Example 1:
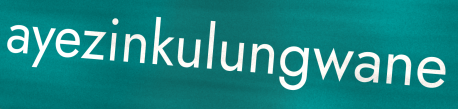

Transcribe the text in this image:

ayezinkulungwane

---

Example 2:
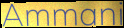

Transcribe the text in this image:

Ammani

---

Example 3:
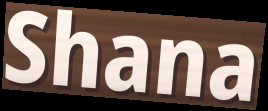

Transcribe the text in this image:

Shana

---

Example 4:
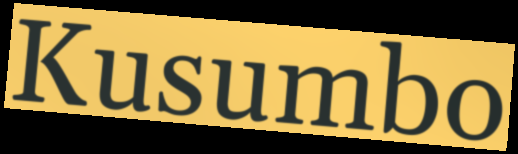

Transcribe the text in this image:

Kusumbo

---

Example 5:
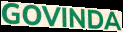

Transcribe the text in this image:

GOVINDA